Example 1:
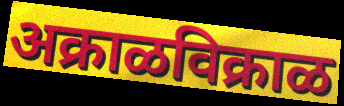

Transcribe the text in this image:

अक्राळविक्राळ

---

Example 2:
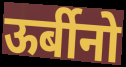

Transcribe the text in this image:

ऊर्बीनो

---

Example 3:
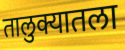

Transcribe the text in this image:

तालुक्यातला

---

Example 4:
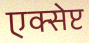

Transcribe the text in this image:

एक्सेप्ट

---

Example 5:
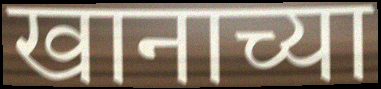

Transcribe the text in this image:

खानाच्या